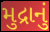
મુદ્રાનું